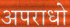
अपराधो